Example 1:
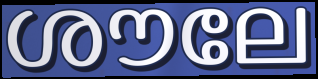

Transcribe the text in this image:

ശൗലേ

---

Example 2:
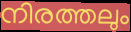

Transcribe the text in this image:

നിരത്തലും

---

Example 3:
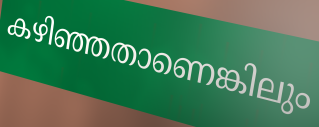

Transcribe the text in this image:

കഴിഞ്ഞതാണെങ്കിലും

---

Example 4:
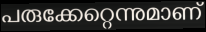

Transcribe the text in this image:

പരുക്കേറ്റെന്നുമാണ്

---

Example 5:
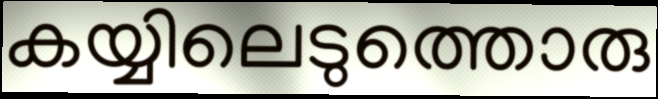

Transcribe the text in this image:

കയ്യിലെടുത്തൊരു